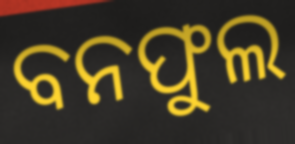
ବନଫୁଲ